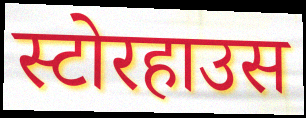
स्टोरहाउस